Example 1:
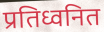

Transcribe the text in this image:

प्रतिध्वनित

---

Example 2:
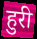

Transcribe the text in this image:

हुरी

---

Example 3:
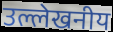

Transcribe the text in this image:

उल्लेखनीय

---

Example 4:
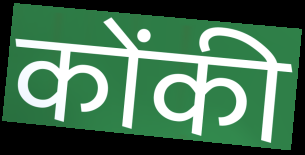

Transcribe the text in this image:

कोंकी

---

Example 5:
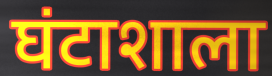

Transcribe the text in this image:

घंटाशाला